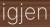
igjen